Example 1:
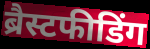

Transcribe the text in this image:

ब्रैस्टफीडिंग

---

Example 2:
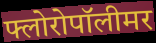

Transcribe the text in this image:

फ्लोरोपॉलीमर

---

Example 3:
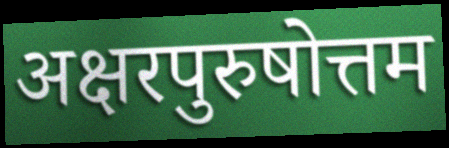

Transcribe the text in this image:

अक्षरपुरुषोत्तम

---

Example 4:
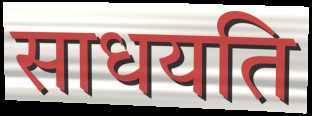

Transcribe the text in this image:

साधयति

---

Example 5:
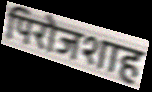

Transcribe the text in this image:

पिरोजशाह